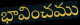
భావించము